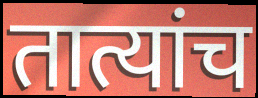
तात्यांच